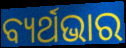
ବ୍ୟର୍ଥଭାର